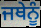
ਜਥੇਨੂੰ